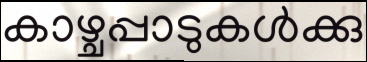
കാഴ്ചപ്പാടുകൾക്കു